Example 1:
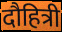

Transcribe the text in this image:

दौहित्री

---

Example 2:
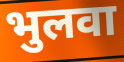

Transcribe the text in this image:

भुलवा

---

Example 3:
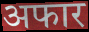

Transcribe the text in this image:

अफार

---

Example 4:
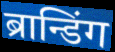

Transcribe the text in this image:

ब्रान्डिंग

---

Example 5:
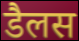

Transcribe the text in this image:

डैलस